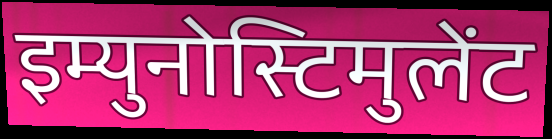
इम्युनोस्टिमुलेंट